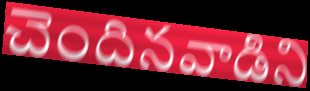
చెందినవాడిని